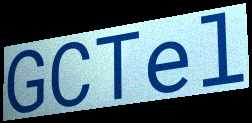
GCTel